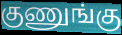
குணுங்கு